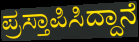
ಪ್ರಸ್ತಾಪಿಸಿದ್ದಾನೆ